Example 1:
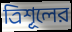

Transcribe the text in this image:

ত্রিশূলের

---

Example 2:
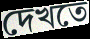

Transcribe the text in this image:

দেখতে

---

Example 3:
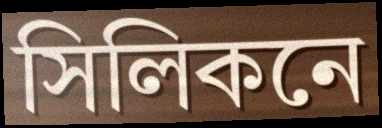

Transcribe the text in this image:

সিলিকনে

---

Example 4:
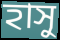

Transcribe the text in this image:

হাসু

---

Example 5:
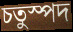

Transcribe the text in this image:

চতুস্পদ